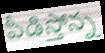
పీడిస్తోన్న